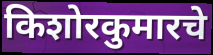
किशोरकुमारचे